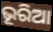
ଭୂରିଆ